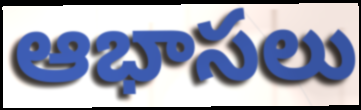
ఆభాసలు